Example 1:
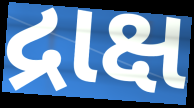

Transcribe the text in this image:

દ્રાક્ષ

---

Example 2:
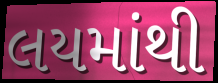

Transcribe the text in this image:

લયમાંથી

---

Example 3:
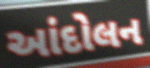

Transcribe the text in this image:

આંદોલન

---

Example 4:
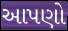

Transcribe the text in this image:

આપણો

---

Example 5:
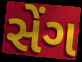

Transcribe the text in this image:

સેંગ